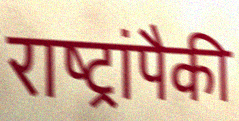
राष्ट्रांपैकी